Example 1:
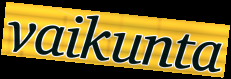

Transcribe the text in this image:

vaikunta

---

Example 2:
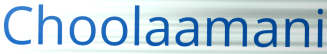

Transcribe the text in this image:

Choolaamani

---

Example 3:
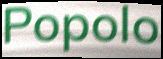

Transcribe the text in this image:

Popolo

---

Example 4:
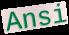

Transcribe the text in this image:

Ansi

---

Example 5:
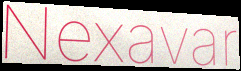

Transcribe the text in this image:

Nexavar